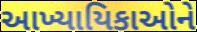
આખ્યાયિકાઓને